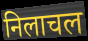
निलाचल